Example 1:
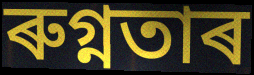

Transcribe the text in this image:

ৰুগ্নতাৰ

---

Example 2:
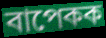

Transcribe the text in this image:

বাপেকক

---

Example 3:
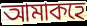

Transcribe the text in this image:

আমাকহে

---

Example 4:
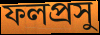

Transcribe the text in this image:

ফলপ্ৰসু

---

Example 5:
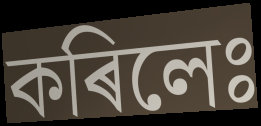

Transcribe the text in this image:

কৰিলেঃ